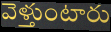
వెళ్తుంటారు